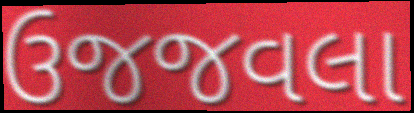
ઉજજવલા